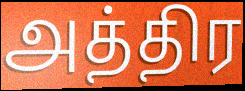
அத்திர